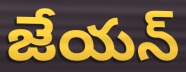
జేయన్